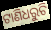
ଟାଣିଧରୁଚି